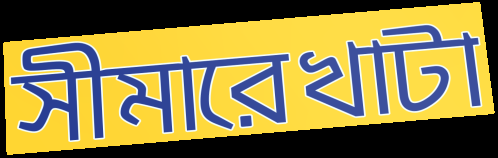
সীমারেখাটা